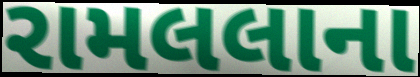
રામલલાના